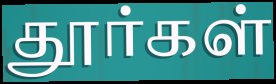
தூர்கள்